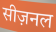
सीज़नल